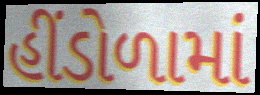
હીંડોળામાં